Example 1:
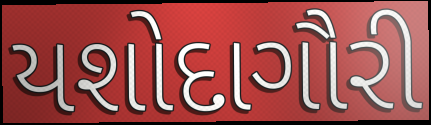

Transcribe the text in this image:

યશોદાગૌરી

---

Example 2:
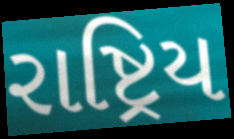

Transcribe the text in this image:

રાષ્ટ્રિય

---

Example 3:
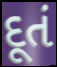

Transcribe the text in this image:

દૂતં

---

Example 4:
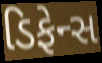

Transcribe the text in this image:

ડિફેન્સ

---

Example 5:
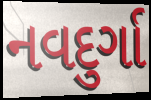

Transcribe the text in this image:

નવદુર્ગા